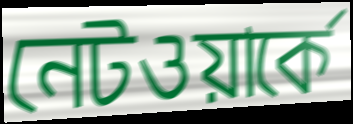
নেটওয়ার্কে